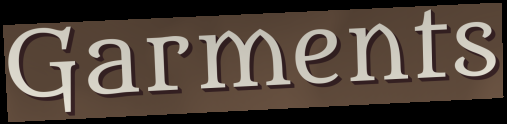
Garments